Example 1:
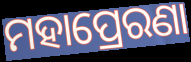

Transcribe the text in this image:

ମହାପ୍ରେରଣା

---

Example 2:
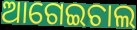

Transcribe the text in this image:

ଆଗେଇଚାଲ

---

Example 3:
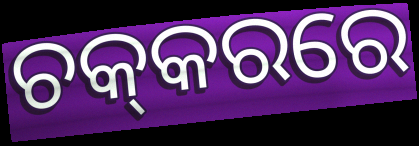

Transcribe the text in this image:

ଚକ୍‌କରରେ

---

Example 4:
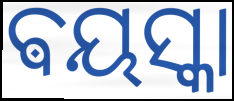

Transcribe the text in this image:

ଵୟସ୍କା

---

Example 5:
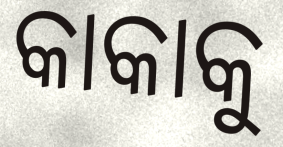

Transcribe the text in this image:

କାକାକୁ